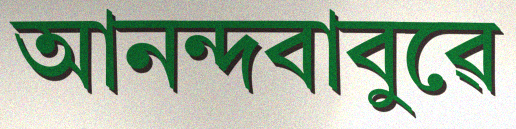
আনন্দবাবুৱে